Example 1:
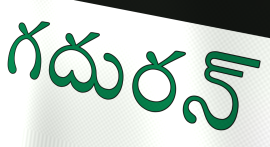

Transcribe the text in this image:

గదురన్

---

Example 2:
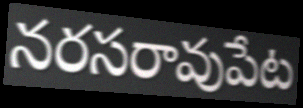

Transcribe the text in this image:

నరసరావుపేట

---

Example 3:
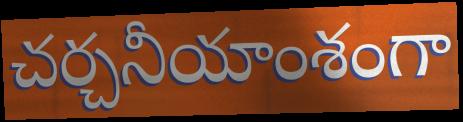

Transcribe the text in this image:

చర్చనీయాంశంగా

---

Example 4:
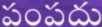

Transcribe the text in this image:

పంపదు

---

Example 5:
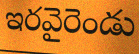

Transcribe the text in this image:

ఇరవైరెండు